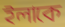
ইলাকে